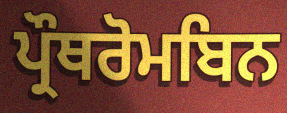
ਪ੍ਰੌਥਰੋਮਬਿਨ